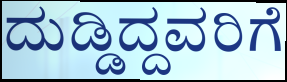
ದುಡ್ಡಿದ್ದವರಿಗೆ